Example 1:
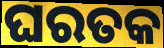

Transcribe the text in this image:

ଘରତକ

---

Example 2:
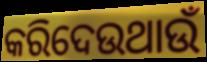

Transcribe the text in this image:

କରିଦେଉଥାଉଁ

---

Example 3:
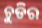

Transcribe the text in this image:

ଚୁଡିର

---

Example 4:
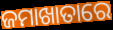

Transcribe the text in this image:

ଜମାଖାତାରେ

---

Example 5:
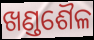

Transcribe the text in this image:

ଖଣ୍ଡଶୈଳ